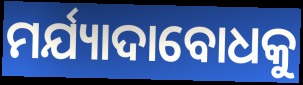
ମର୍ଯ୍ୟାଦାବୋଧକୁ